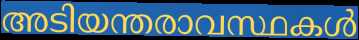
അടിയന്തരാവസ്ഥകൾ